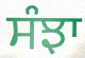
ਸੰਝਾ